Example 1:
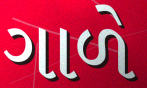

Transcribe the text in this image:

ગાળે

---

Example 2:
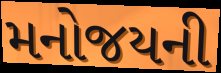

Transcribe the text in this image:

મનોજયની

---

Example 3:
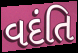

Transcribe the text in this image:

વદંતિ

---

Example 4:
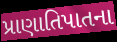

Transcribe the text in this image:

પ્રાણાતિપાતના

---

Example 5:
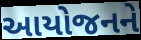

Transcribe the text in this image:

આયોજનને